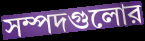
সম্পদগুলোর